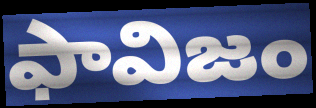
ఫావిజం